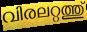
വിരലറ്റത്തു്